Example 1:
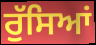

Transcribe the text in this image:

ਰੁੱਸਿਆਂ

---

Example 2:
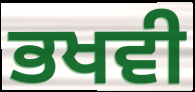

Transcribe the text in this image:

ਭਖਵੀ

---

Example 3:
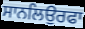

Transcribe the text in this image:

ਸਾਨਲਿਉਰਫਾ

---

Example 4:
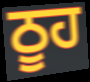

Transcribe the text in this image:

ਠੂਹ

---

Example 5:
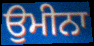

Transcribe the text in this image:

ਉਮੀਨਾ